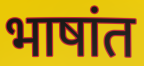
भाषांत